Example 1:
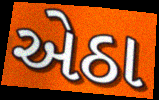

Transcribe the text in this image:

એઠા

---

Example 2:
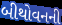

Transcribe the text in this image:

બીથોવનની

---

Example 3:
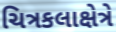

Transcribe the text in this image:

ચિત્રકલાક્ષેત્રે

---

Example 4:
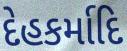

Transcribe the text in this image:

દેહકર્માદિ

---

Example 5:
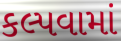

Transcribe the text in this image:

કલ્પવામાં